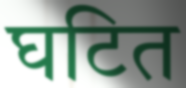
घटित